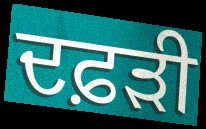
ਦਫ਼ੜੀ